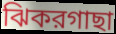
ঝিকরগাছা